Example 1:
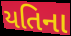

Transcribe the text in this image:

યતિના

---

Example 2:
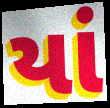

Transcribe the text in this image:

યાં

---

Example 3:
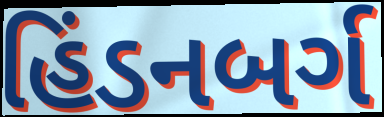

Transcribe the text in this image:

હિંડનબર્ગ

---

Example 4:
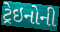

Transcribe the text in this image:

ટ્રેઇનોની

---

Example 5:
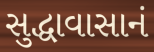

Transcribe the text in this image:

સુદ્ધાવાસાનં